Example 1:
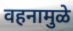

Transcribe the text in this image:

वहनामुळे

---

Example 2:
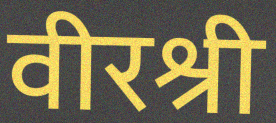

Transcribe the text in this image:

वीरश्री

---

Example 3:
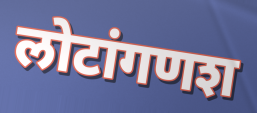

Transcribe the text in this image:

लोटांगणश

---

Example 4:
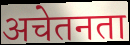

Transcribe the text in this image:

अचेतनता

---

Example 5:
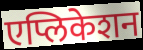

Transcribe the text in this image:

एप्लिकेशन